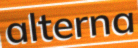
alterna